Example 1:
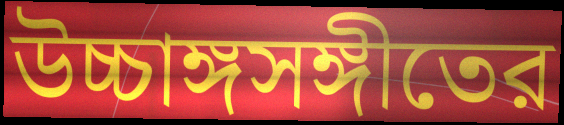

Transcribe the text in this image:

উচ্চাঙ্গসঙ্গীতের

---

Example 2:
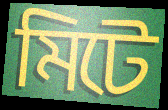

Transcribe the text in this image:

মিটে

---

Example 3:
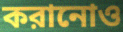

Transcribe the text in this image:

করানোও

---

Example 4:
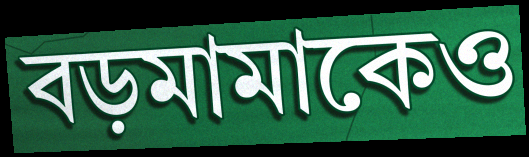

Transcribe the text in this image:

বড়মামাকেও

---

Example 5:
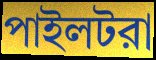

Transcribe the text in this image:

পাইলটরা